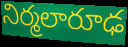
నిర్మలారూఢ